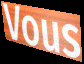
Vous